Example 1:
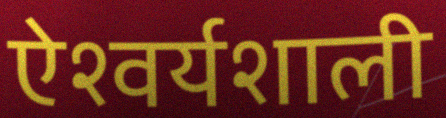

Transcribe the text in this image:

ऐश्वर्यशाली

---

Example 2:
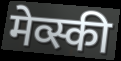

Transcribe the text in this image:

मेव्स्की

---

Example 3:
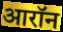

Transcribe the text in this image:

आरॉन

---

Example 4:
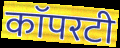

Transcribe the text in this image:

कॉपरटी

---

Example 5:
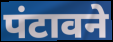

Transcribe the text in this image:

पंटावने